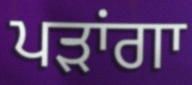
ਪੜਾਂਗਾ